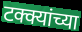
टक्क्यांच्या